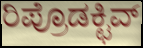
ರಿಪ್ರೊಡಕ್ಟಿವ್